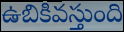
ఉబికివస్తుంది